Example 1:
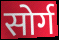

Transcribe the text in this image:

सोर्ग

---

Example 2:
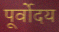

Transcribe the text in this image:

पूर्वोदय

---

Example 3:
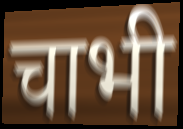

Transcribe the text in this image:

चाभी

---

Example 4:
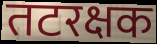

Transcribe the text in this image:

तटरक्षक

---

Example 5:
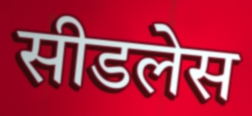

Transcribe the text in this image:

सीडलेस